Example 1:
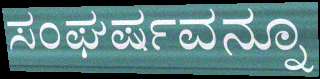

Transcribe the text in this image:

ಸಂಘರ್ಷವನ್ನೂ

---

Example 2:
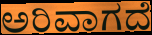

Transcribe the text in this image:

ಅರಿವಾಗದೆ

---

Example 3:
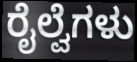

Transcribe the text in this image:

ರೈಲ್ವೆಗಳು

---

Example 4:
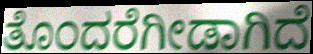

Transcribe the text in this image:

ತೊಂದರೆಗೀಡಾಗಿದೆ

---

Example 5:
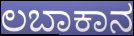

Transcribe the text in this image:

ಲಬಾಕಾನ